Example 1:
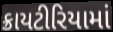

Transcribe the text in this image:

ક્રાયટીરિયામાં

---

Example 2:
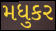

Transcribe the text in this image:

મધુકર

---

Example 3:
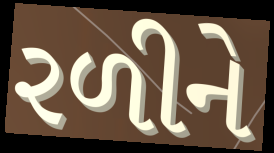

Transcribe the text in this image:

રળીને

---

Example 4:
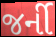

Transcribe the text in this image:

જર્ની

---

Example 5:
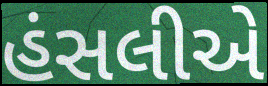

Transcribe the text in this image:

હંસલીએ